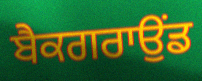
ਬੈਕਗਰਾਉਂਡ